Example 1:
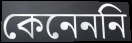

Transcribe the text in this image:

কেনেননি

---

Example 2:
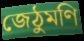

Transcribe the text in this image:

জেঠুমণি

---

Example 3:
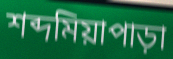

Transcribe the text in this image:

শব্দমিয়াপাড়া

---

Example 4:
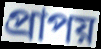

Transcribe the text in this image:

প্রাপয়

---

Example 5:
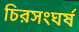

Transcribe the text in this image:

চিরসংঘর্ষ